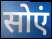
सोएं